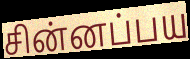
சின்னப்பய